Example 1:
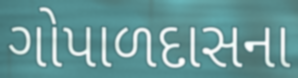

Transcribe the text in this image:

ગોપાળદાસના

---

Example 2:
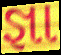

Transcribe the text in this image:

જ્ઞા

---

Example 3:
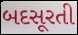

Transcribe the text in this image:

બદસૂરતી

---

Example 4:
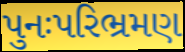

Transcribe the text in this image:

પુનઃપરિભ્રમણ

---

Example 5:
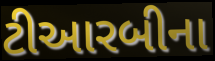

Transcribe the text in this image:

ટીઆરબીના